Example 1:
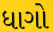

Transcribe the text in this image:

ધાગો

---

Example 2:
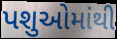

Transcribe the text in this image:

પશુઓમાંથી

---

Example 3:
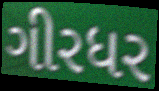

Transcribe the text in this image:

ગીરધર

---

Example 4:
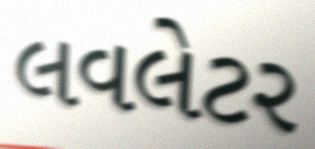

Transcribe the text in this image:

લવલેટર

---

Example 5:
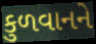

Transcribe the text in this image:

કુળવાનને